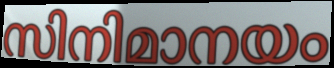
സിനിമാനയം